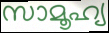
സാമൂഹ്യ